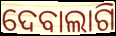
ଦେବାଲାଗି